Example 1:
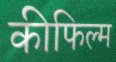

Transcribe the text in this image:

कीफिल्म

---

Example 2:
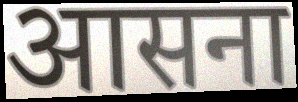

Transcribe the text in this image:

आसना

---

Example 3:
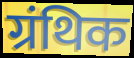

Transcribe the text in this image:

ग्रंथिक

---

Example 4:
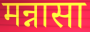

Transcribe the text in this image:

मन्नासा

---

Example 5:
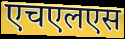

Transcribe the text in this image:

एचएलएस